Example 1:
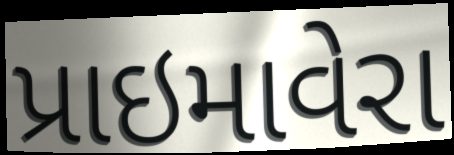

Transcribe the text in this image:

પ્રાઇમાવેરા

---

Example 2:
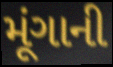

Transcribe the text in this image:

મૂંગાની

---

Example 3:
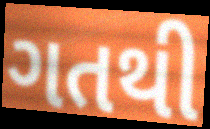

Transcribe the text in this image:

ગતથી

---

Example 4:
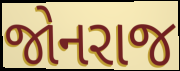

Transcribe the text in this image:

જોનરાજ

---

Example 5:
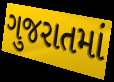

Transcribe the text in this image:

ગુજરાતમાં